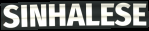
SINHALESE